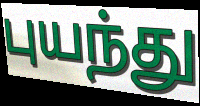
புயந்து